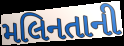
મલિનતાની